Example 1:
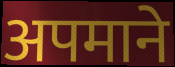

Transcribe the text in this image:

अपमाने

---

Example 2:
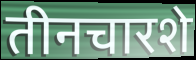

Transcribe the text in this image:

तीनचारशे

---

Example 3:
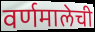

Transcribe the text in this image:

वर्णमालेची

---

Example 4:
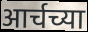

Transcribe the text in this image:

आर्चच्या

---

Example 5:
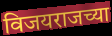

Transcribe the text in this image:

विजयराजच्या